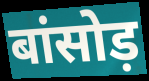
बांसोड़